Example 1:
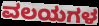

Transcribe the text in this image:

ವಲಯಗಳ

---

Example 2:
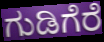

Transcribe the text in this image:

ಗುಡಿಗೆರೆ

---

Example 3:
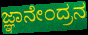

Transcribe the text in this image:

ಜ್ಞಾನೇಂದ್ರನ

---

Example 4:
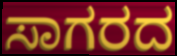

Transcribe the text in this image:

ಸಾಗರದ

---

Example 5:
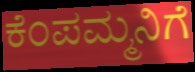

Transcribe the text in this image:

ಕೆಂಪಮ್ಮನಿಗೆ